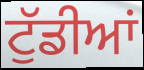
ਟੁੱਡੀਆਂ